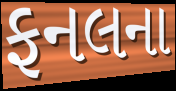
ફનલના